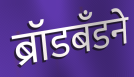
ब्रॉडबँडने